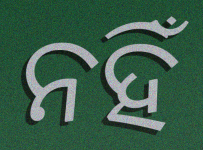
ନହିଁ